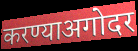
करण्याअगोदर